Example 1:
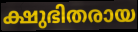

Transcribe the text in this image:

ക്ഷുഭിതരായ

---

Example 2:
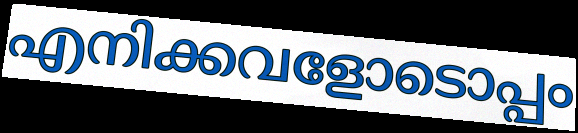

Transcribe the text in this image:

എനിക്കവളോടൊപ്പം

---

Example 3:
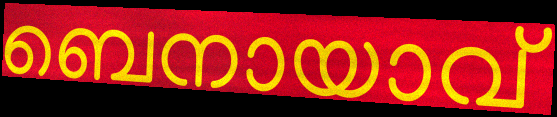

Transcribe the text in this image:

ബെനായാവ്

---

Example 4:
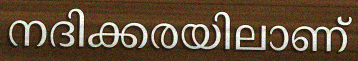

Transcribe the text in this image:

നദിക്കരയിലാണ്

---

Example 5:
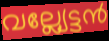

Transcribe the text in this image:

വല്ല്യേട്ടൻ